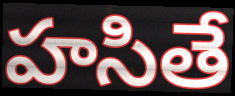
హసితే